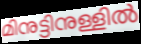
മിനുട്ടിനുള്ളിൽ